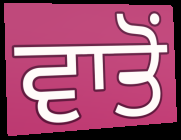
ਵਾਤੋਂ